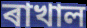
ৰাখাল